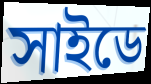
সাইডে